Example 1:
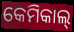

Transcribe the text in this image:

କେମିକାଲ୍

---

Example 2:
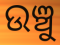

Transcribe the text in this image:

ଉଞ୍ଚୁ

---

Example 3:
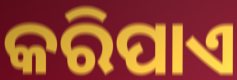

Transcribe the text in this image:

କରିପାଏ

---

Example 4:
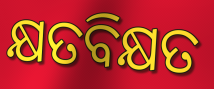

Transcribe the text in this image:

କ୍ଷତବିକ୍ଷତ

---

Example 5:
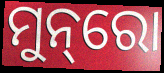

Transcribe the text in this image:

ମୁନ୍‌ରୋ